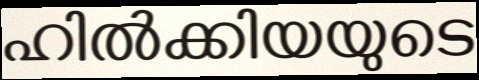
ഹിൽക്കിയയുടെ